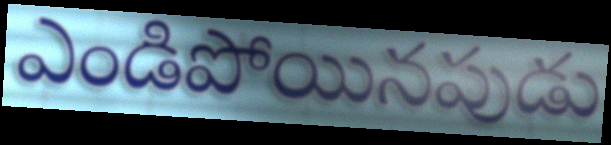
ఎండిపోయినపుడు